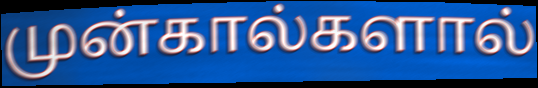
முன்கால்களால்